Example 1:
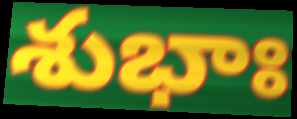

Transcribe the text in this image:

శుభాః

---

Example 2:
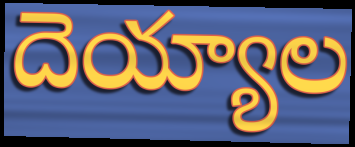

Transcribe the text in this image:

దెయ్యాల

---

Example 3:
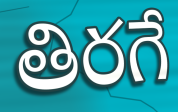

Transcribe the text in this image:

తిరగే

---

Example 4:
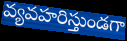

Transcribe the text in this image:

వ్యవహరిస్తుండగా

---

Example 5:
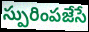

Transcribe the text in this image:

స్పురింపజేసే